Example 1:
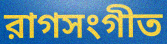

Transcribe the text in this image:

রাগসংগীত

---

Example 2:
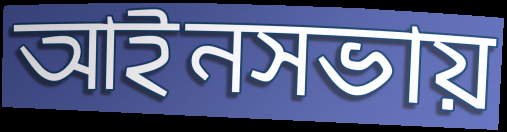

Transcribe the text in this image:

আইনসভায়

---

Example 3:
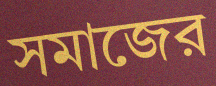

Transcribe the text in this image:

সমাজের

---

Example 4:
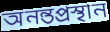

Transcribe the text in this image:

অনন্তপ্রস্থান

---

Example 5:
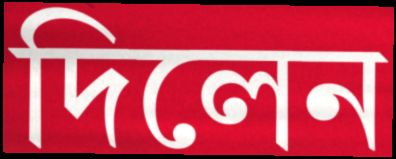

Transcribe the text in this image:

দিলেন